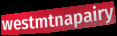
westmtnapairy